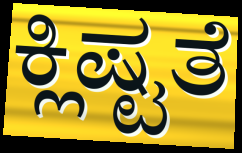
ಕ್ಲಿಷ್ಟತೆ